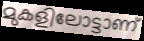
മുകളിലോട്ടാണ്